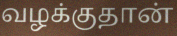
வழக்குதான்